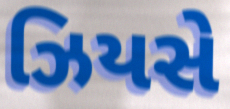
ઝિયસે